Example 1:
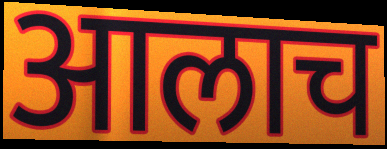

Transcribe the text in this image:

आलाच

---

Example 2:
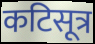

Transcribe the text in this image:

कटिसूत्र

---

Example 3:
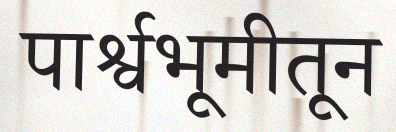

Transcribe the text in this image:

पार्श्वभूमीतून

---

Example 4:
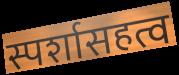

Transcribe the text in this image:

स्पर्शासहत्व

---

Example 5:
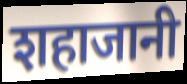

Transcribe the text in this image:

शहाजानी